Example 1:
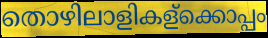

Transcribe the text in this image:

തൊഴിലാളികള്ക്കൊപ്പം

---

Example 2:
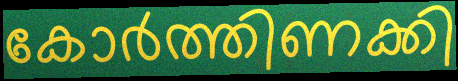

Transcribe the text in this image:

കോർത്തിണക്കി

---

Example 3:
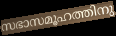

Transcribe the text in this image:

സഭാസമൂഹത്തിനു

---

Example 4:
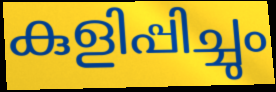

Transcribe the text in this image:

കുളിപ്പിച്ചും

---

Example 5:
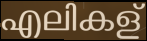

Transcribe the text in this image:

എലികള്